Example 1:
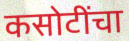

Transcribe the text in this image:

कसोटींचा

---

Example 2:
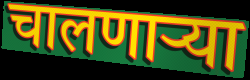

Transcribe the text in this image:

चालणाऱ्या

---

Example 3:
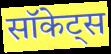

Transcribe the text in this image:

सॉकेट्स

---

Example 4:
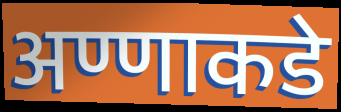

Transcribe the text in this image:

अण्णाकडे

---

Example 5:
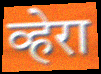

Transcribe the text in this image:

व्हेरा